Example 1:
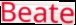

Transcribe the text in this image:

Beate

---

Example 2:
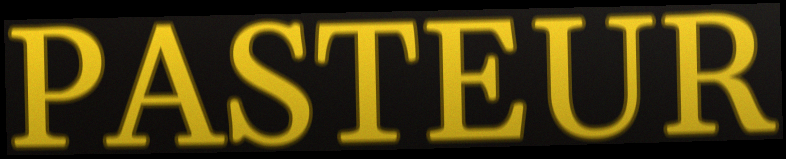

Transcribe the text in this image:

PASTEUR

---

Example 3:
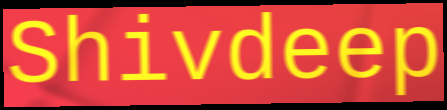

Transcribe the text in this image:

Shivdeep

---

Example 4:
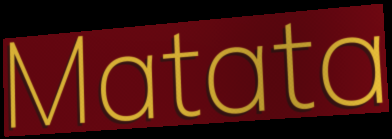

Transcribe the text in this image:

Matata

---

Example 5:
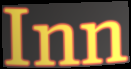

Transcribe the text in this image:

Inn